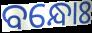
ବନ୍ଧୋଃ